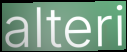
alteri